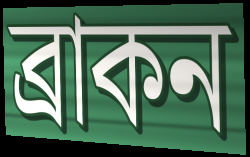
ব্রাকন